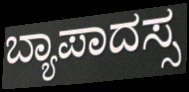
ಬ್ಯಾಪಾದಸ್ಸ